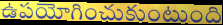
ఉపయోగించుకుంటుంది